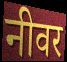
नीवर